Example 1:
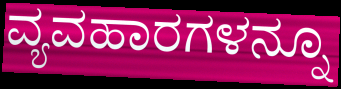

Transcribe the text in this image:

ವ್ಯವಹಾರಗಳನ್ನೂ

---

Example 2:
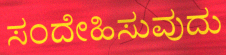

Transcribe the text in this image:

ಸಂದೇಹಿಸುವುದು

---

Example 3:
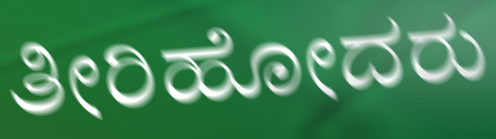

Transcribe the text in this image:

ತೀರಿಹೋದರು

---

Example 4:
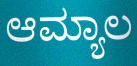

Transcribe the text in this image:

ಆಮ್ಯಾಲ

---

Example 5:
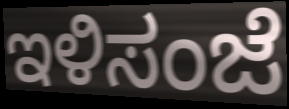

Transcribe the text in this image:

ಇಳಿಸಂಜೆ